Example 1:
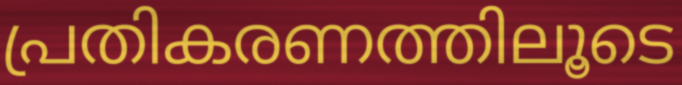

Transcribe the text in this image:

പ്രതികരണത്തിലൂടെ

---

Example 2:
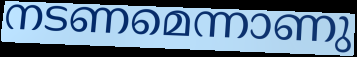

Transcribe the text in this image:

നടണമെന്നാണു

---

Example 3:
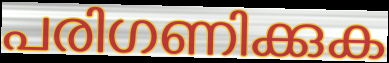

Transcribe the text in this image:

പരിഗണിക്കുക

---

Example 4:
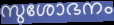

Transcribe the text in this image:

സുശോഭനം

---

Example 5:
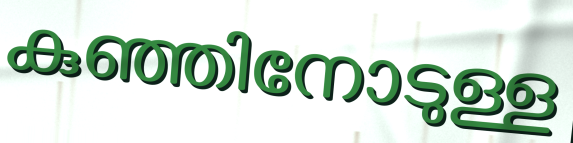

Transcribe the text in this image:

കുഞ്ഞിനോടുള്ള